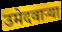
उमेदवार्‍या